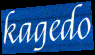
kagedo